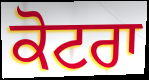
ਕੋਟਰਾ